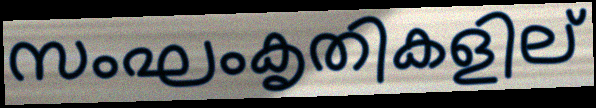
സംഘംകൃതികളില്